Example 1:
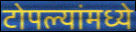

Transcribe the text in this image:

टोपल्यांमध्ये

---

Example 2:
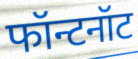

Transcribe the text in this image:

फॉन्टनॉट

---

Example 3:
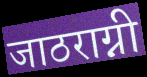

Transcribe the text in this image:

जाठराग्नी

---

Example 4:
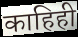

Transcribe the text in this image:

काहिही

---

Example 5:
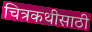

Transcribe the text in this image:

चित्रकथीसाठी